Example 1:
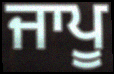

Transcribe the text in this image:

ਜਾਪੂ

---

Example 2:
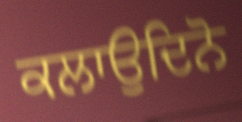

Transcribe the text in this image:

ਕਲਾਉਦਿਨੋ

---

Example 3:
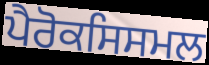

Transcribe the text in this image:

ਪੈਰੋਕਸਿਸਮਲ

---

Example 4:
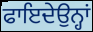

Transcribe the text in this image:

ਫਾਇਦੇਉਨ੍ਹਾਂ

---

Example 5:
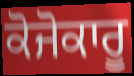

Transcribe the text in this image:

ਕੋਜੋਕਾਰੂ